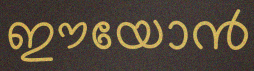
ഈയോൻ